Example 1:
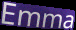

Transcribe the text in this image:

Emma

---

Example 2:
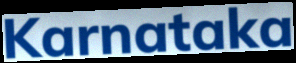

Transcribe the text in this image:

Karnataka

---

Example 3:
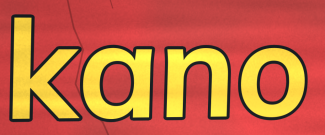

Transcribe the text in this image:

kano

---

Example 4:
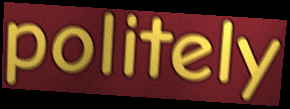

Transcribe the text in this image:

politely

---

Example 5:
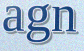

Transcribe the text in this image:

agn